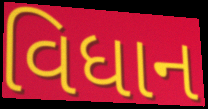
વિધાન